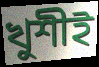
খুশীই